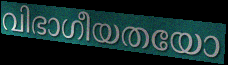
വിഭാഗീയതയോ